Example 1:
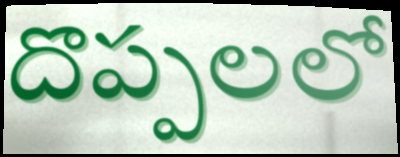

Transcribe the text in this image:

దొప్పలలో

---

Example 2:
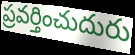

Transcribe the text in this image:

ప్రవర్తించుదురు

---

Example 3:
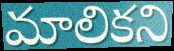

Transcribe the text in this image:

మాలికని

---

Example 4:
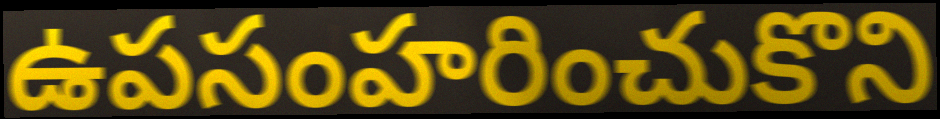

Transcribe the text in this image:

ఉపసంహరించుకొని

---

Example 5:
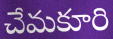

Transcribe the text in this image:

చేమకూరి